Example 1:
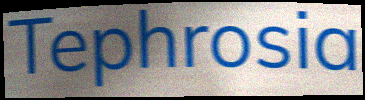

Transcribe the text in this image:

Tephrosia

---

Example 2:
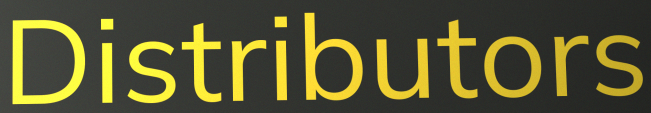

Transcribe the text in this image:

Distributors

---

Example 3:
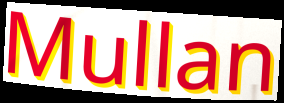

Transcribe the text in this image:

Mullan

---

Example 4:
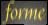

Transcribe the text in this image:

forme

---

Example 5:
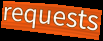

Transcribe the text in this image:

requests